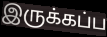
இருக்கப்ப